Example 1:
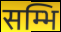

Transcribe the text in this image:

सम्भि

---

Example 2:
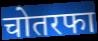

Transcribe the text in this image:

चोतरफा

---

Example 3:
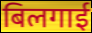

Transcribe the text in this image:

बिलगाई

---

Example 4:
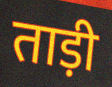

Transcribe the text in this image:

ताड़ी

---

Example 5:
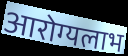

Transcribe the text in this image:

आरोग्यलाभ